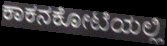
ಕಾಕನಕೋಟೆಯಲ್ಲಿ